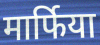
मार्फिया